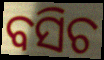
ବସିଚ